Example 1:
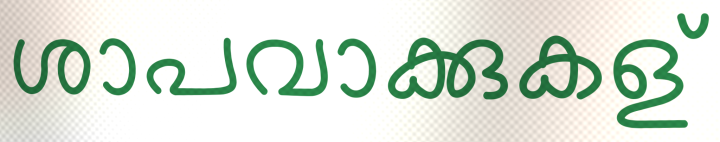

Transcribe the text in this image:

ശാപവാക്കുകള്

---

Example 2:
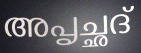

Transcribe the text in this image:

അപൃച്ഛദ്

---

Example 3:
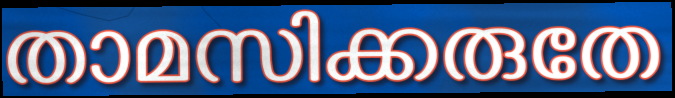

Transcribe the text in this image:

താമസിക്കരുതേ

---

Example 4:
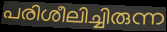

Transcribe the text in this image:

പരിശീലിച്ചിരുന്ന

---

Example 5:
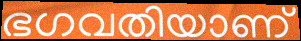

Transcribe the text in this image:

ഭഗവതിയാണ്